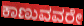
ಕಾಣುವವರೇ